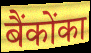
बैंकोंका